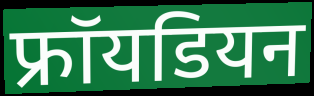
फ्रॉयडियन